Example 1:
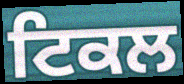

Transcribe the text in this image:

ਟਿਕਲ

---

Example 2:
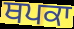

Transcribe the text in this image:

ਥਪਕਾ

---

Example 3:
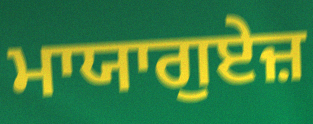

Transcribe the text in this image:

ਮਾਯਾਗੁਏਜ਼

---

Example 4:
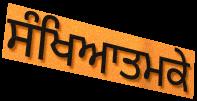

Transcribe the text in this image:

ਸੰਖਿਆਤਮਕੇ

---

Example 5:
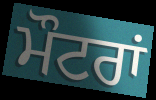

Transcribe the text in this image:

ਮੌਟਰਾਂ